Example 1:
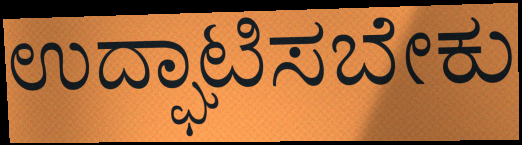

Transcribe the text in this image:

ಉದ್ಘಾಟಿಸಬೇಕು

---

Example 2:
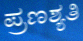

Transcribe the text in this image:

ಪ್ರಣಶ್ಯತಿ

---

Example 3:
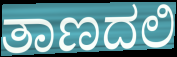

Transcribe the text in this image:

ತಾಣದಲಿ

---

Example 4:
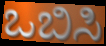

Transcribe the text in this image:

ಒಬಿಸಿ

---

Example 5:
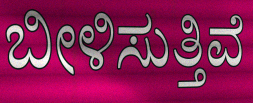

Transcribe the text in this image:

ಬೀಳಿಸುತ್ತಿವೆ